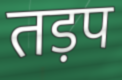
तड़प